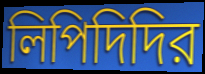
লিপিদিদির